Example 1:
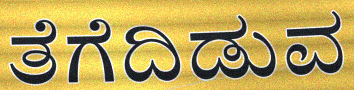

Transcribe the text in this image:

ತೆಗೆದಿಡುವ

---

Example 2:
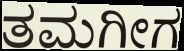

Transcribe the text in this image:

ತಮಗೀಗ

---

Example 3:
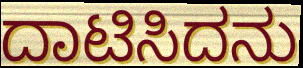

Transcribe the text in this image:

ದಾಟಿಸಿದನು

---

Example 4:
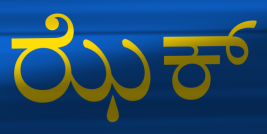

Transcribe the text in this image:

ಝೆಕ್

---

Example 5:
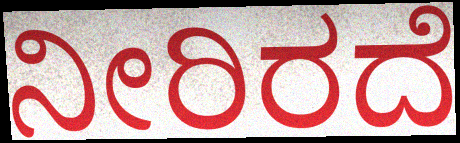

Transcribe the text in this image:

ನೀರಿರದೆ